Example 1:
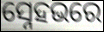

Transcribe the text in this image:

ସ୍ନେହଭରେ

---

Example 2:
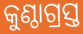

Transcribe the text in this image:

କୁଣ୍ଠାଗ୍ରସ୍ତ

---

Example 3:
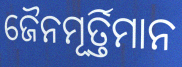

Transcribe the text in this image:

ଜୈନମୂର୍ତ୍ତିମାନ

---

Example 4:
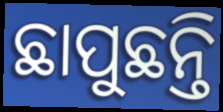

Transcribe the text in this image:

ଛାପୁଛନ୍ତି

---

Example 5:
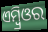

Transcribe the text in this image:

ଏମ୍ବ୍ରିଓର